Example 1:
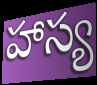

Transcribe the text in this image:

హాస్య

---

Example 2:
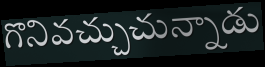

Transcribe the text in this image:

గొనివచ్చుచున్నాడు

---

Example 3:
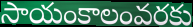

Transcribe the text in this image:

సాయంకాలంవరకు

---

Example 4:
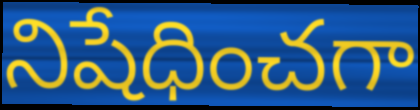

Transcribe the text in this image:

నిషేధించగా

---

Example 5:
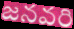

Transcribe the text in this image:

జనవరి